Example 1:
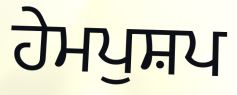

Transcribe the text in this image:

ਹੇਮਪੁਸ਼ਪ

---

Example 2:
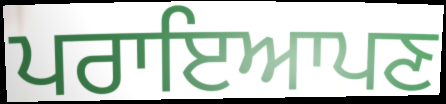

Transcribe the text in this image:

ਪਰਾਇਆਪਣ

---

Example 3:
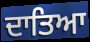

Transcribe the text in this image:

ਦਾਤਿਆ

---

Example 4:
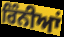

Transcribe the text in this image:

ਰਿੰਨੀਆਂ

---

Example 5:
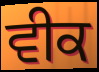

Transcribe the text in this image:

ਵੀਕ